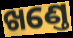
ଖଣ୍ତେ